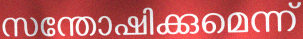
സന്തോഷിക്കുമെന്ന്